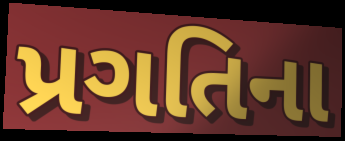
પ્રગતિના